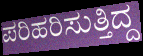
ಪರಿಹರಿಸುತ್ತಿದ್ದ